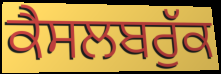
ਕੈਸਲਬਰੁੱਕ